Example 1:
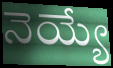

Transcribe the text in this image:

నెయ్యే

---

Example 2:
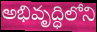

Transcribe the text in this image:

అభివృద్ధిలోని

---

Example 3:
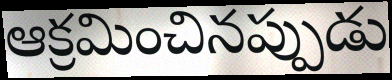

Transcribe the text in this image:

ఆక్రమించినప్పుడు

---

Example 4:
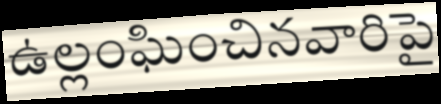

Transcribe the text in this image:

ఉల్లంఘించినవారిపై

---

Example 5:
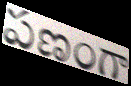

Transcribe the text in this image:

పణంగా